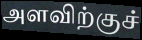
அளவிற்குச்